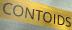
CONTOIDS